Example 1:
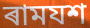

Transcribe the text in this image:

ৰামযশ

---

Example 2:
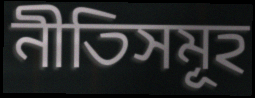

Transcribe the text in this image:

নীতিসমূহ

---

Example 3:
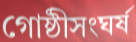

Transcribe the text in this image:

গোষ্ঠীসংঘৰ্ষ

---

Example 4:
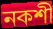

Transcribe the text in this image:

নকশী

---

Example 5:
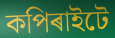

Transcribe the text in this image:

কপিৰাইটে